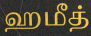
ஹமீத்